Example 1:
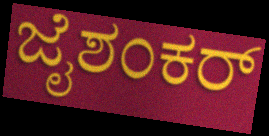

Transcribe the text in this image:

ಜೈಶಂಕರ್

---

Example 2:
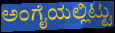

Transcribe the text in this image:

ಅಂಗೈಯಲ್ಲಿಟ್ಟು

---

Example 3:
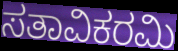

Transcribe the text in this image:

ಸತಾವಿಕರಮಿ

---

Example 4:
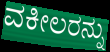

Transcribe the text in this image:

ವಕೀಲರನ್ನು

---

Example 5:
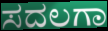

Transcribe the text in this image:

ಸದಲಗಾ